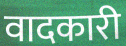
वादकारी